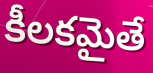
కీలకమైతే